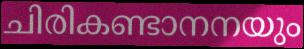
ചിരികണ്ടാനനയും